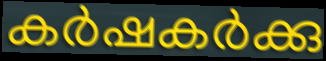
കർഷകർക്കു